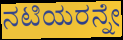
ನಟಿಯರನ್ನೇ